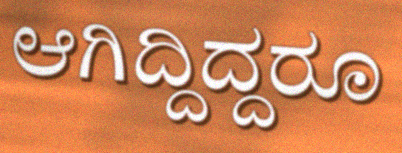
ಆಗಿದ್ದಿದ್ದರೂ